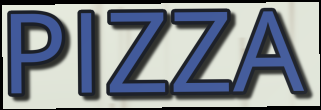
PIZZA